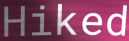
Hiked